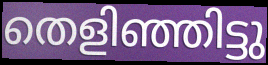
തെളിഞ്ഞിട്ടു